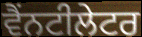
ਵੈਂਨਟੀਲੇਟਰ